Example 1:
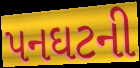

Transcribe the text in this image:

પનઘટની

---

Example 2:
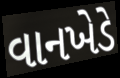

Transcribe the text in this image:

વાનખેડે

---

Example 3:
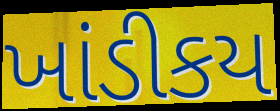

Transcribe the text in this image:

ખાંડીકય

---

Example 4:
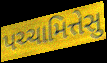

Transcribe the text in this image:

પચ્ચામિત્તેસુ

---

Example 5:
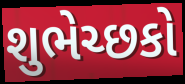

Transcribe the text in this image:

શુભેચ્છકો